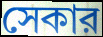
সেকার